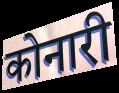
कोनारी